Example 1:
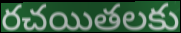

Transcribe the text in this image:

రచయితలకు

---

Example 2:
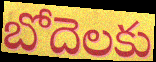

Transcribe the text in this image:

బోదెలకు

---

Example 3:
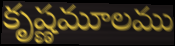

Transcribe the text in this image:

కృష్ణమూలము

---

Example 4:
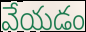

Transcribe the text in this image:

వేయడం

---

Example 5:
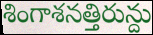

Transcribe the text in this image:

శింగాశనత్తిరున్దు